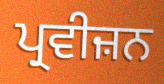
ਪ੍ਰਵੀਜ਼ਨ